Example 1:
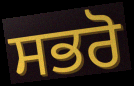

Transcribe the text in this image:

ਸਭਰੋ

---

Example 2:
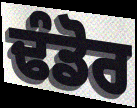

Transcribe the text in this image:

ਢੰਡੋਰ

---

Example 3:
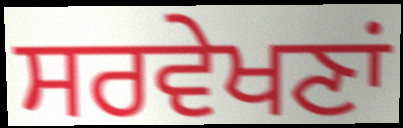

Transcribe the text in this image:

ਸਰਵੇਖਣਾਂ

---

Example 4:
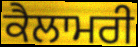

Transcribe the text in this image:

ਕੈਲਾਮਰੀ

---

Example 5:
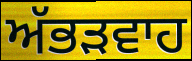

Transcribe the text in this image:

ਅੱਭੜਵਾਹ